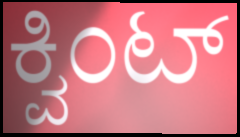
ಕ್ವಿಂಟ್